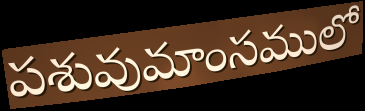
పశువుమాంసములో